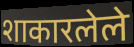
शाकारलेले